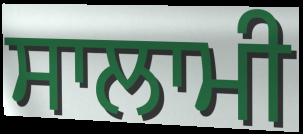
ਸਾਲਾਮੀ